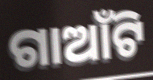
ଗାଆଁଟି